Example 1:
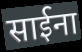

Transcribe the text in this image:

साईना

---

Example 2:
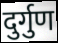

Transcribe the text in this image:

दुर्गुण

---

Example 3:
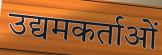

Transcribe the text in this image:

उद्यमकर्ताओं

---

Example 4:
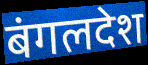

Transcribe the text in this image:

बंगलदेश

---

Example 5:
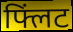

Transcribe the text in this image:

फ्लिंट